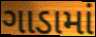
ગાડામાં